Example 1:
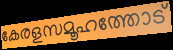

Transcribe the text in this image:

കേരളസമൂഹത്തോട്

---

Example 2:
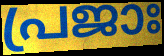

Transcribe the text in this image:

പ്രജാഃ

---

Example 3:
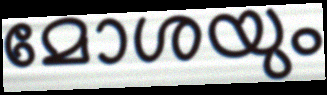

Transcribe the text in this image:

മോശയും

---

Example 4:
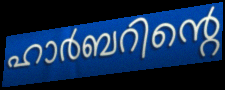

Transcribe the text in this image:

ഹാർബറിന്റെ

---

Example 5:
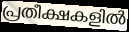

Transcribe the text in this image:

പ്രതീക്ഷകളിൽ